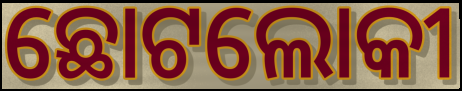
ଛୋଟଲୋକୀ